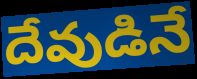
దేవుడినే